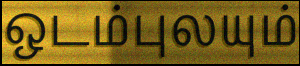
ஒடம்புலயும்